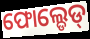
ଫୋଲ୍ଡେଡ୍